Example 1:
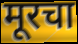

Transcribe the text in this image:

मूरचा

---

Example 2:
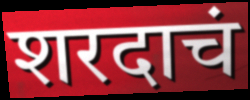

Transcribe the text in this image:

शरदाचं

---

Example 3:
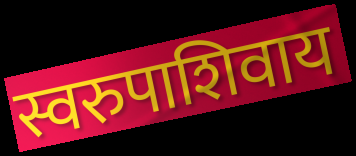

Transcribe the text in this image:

स्वरुपाशिवाय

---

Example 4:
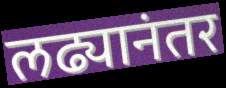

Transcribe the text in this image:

लढ्यानंतर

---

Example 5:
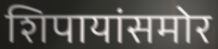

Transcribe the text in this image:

शिपायांसमोर